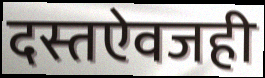
दस्तऐवजही